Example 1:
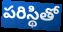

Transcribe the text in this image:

పరిస్థితో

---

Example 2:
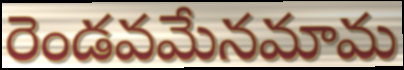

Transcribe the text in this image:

రెండవమేనమామ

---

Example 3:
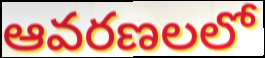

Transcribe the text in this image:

ఆవరణలలో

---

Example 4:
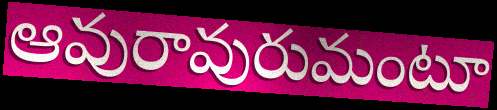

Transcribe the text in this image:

ఆవురావురుమంటూ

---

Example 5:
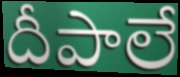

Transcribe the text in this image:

దీపాలే